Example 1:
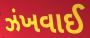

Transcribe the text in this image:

ઝંખવાઈ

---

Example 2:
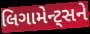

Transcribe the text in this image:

લિગામેન્ટ્સને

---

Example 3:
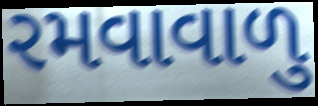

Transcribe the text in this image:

રમવાવાળુ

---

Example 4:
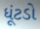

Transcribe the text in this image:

ધૂંટડો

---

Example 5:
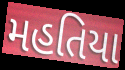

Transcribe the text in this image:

મહતિયા